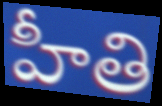
హీతి